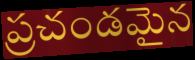
ప్రచండమైన